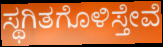
ಸ್ಥಗಿತಗೊಳಿಸ್ತೇವೆ